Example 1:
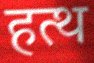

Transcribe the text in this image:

हत्थ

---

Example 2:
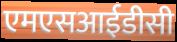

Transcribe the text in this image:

एमएसआईडीसी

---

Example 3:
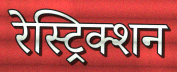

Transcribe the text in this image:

रेस्ट्रिक्शन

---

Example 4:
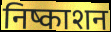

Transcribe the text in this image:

निष्काशन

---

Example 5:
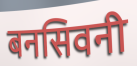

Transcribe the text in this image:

बनसिवनी